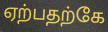
ஏற்பதற்கே